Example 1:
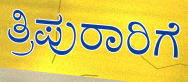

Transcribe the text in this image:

ತ್ರಿಪುರಾರಿಗೆ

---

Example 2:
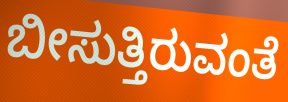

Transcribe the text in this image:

ಬೀಸುತ್ತಿರುವಂತೆ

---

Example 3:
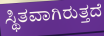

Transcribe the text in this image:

ಸ್ಥಿತವಾಗಿರುತ್ತದೆ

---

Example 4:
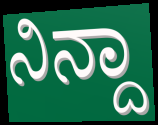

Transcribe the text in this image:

ನಿನ್ದಾ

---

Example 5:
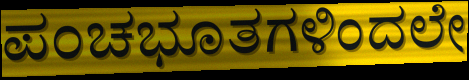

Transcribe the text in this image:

ಪಂಚಭೂತಗಳಿಂದಲೇ